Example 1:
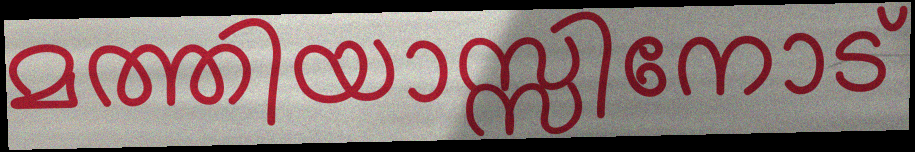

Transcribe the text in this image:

മത്തിയാസ്സിനോട്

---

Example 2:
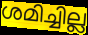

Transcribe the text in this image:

ശമിച്ചില്ല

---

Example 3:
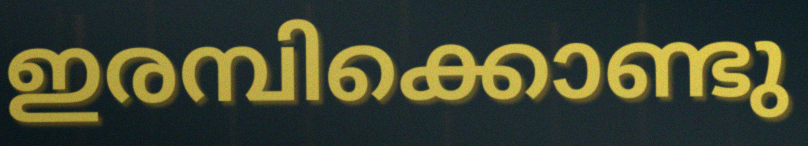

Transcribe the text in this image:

ഇരമ്പിക്കൊണ്ടു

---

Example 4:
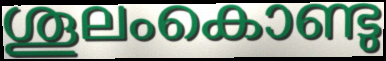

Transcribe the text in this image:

ശൂലംകൊണ്ടു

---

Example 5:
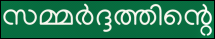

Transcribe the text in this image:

സമ്മർദ്ദത്തിന്റെ